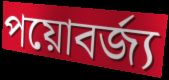
পয়োবর্জ্য